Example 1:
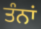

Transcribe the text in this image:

ਤੰਨਾਂ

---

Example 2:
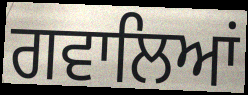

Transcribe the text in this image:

ਗਵਾਲਿਆਂ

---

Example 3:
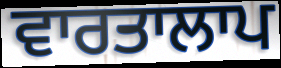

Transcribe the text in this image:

ਵਾਰਤਾਲਾਪ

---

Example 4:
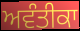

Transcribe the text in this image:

ਅਵੰਤੀਕਾ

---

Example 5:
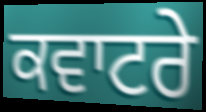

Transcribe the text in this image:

ਕਵਾਟਰੇ